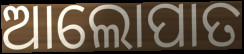
ଆଲୋପାତ